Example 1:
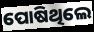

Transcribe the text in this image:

ପୋଷିଥିଲେ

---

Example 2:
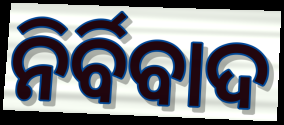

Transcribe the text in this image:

ନିର୍ବିବାଦ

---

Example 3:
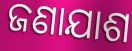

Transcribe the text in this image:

ଜଣାଯାଶ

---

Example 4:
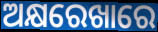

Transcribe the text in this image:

ଅକ୍ଷରେଖାରେ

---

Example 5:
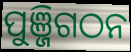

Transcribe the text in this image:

ପୁଞ୍ଜିଗଠନ